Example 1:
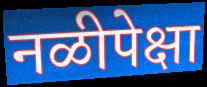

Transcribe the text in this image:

नळीपेक्षा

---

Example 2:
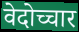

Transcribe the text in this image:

वेदोच्चार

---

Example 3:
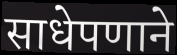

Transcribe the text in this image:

साधेपणाने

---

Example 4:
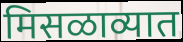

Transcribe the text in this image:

मिसळाव्यात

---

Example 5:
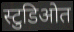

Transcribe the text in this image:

स्टुडिओत